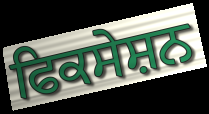
ਫਿਕਸੇਸ਼ਨ